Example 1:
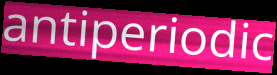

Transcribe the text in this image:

antiperiodic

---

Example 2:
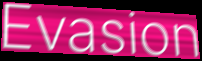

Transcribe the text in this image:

Evasion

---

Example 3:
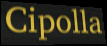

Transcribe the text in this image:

Cipolla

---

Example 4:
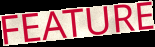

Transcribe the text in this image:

FEATURE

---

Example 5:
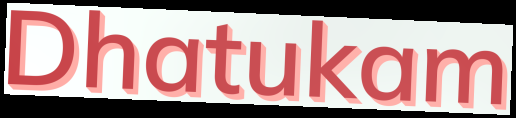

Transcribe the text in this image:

Dhatukam